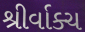
શ્રીર્વાક્ચ